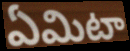
ఏమిటా